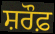
ਸ਼ਰੌਫ਼